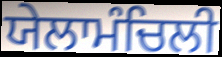
ਯੇਲਾਮੰਚਿਲੀ